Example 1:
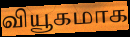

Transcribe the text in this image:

வியூகமாக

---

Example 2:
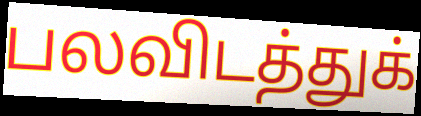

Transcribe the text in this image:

பலவிடத்துக்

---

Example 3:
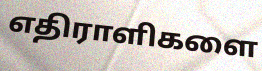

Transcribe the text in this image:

எதிராளிகளை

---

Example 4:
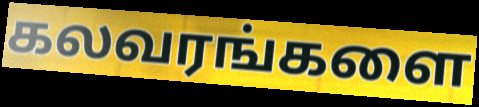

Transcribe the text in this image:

கலவரங்களை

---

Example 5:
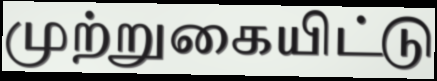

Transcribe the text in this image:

முற்றுகையிட்டு